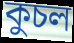
কুচল